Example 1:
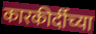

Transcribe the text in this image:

कारकीर्दीच्या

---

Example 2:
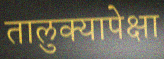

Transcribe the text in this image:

तालुक्यापेक्षा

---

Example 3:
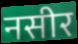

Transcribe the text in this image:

नसीर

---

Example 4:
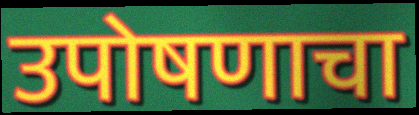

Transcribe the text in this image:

उपोषणाचा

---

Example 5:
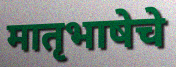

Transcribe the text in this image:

मातृभाषेचे